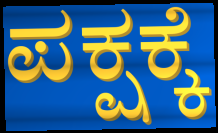
ಪಕ್ಷಕ್ಕೆ